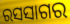
ରସସାଗର